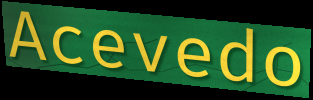
Acevedo